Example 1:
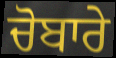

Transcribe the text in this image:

ਚੋਬਾਰੇ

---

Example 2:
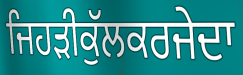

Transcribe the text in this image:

ਜਿਹੜੀਕੁੱਲਕਰਜੇਦਾ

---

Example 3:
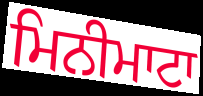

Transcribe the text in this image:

ਮਿਨੀਮਾਟਾ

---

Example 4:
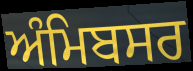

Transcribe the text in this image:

ਅੰਮਿਬਸਰ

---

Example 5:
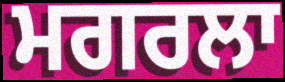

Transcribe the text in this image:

ਮਗਰਲਾ